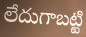
లేదుగాబట్టి